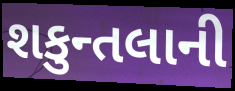
શકુન્તલાની